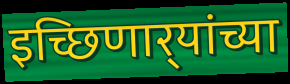
इच्छिणार्‍यांच्या